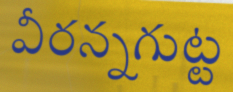
వీరన్నగుట్ట